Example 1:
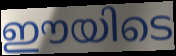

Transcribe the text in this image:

ഈയിടെ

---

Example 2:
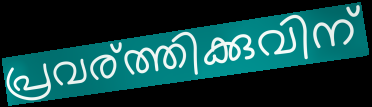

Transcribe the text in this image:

പ്രവര്ത്തിക്കുവിന്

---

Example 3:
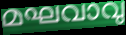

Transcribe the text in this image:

മഘവാവു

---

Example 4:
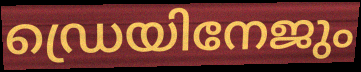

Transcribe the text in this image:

ഡ്രെയിനേജും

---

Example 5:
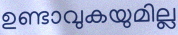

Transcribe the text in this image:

ഉണ്ടാവുകയുമില്ല